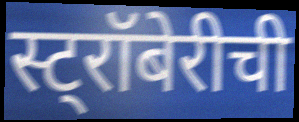
स्ट्रॉबेरीची